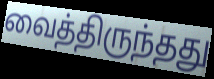
வைத்திருந்தது